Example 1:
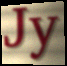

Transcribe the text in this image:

Jy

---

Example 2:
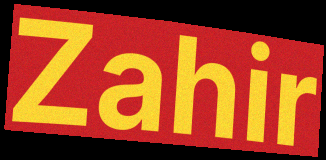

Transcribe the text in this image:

Zahir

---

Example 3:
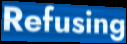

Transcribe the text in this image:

Refusing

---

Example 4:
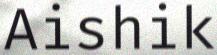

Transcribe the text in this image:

Aishik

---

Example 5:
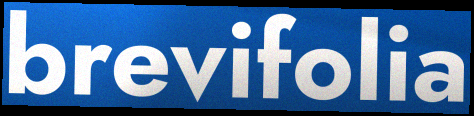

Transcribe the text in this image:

brevifolia